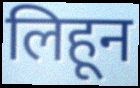
लिहून